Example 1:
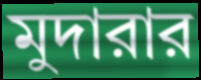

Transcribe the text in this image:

মুদারার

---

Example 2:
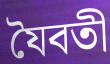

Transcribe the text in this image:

যৈবতী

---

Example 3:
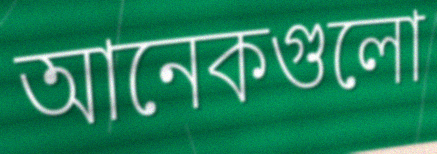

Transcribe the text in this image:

আনেকগুলো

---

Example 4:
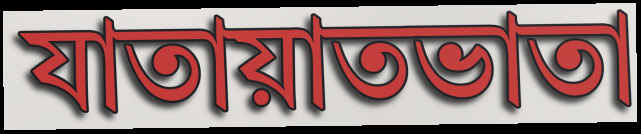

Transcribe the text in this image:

যাতায়াতভাতা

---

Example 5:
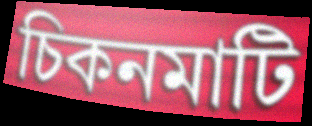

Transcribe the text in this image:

চিকনমাটি